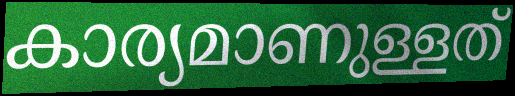
കാര്യമാണുള്ളത്